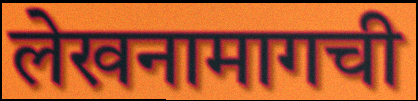
लेखनामागची